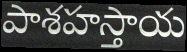
పాశహస్తాయ